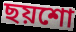
ছয়শো